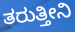
ತರುತ್ತೀನಿ